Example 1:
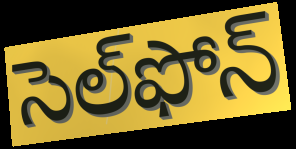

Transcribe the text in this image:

సెల్‌ఫోన్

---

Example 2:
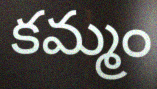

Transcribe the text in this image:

కమ్మం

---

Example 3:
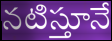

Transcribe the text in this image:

నటిస్తూనే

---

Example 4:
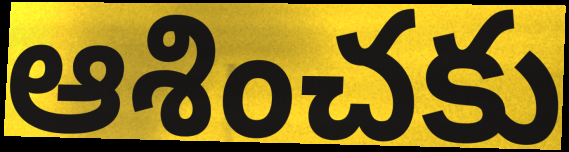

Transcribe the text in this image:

ఆశించకు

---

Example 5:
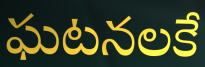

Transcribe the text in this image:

ఘటనలకే